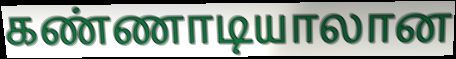
கண்ணாடியாலான